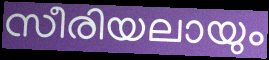
സീരിയലായും